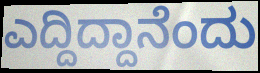
ಎದ್ದಿದ್ದಾನೆಂದು